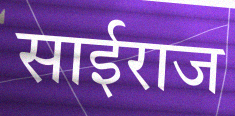
साईराज